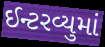
ઈન્ટરવ્યુમાં